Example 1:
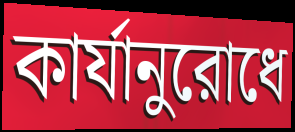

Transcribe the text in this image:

কার্যানুরোধে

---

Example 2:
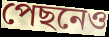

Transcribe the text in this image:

পেছনেও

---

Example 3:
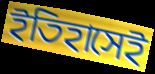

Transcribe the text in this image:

ইতিহাসেই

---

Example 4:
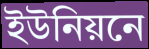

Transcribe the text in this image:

ইউনিয়নে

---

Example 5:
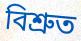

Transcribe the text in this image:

বিশ্রুত